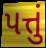
પત્તું